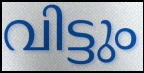
വിട്ടും